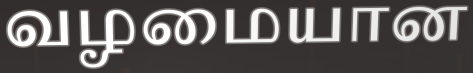
வழமையான